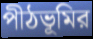
পীঠভূমির